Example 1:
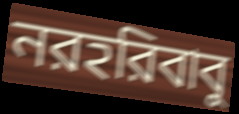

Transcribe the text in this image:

নরহরিবাবু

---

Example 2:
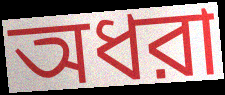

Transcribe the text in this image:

অধরা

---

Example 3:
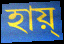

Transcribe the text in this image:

হায়্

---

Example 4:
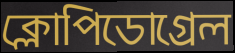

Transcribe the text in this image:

ক্লোপিডোগ্রেল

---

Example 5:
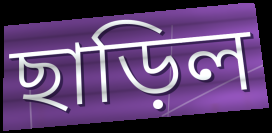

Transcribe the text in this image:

ছাড়িল